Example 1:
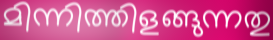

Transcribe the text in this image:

മിന്നിത്തിളങ്ങുന്നതു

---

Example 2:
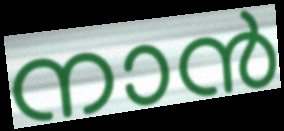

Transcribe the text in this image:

നാൻ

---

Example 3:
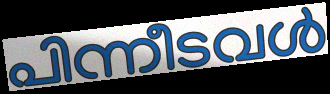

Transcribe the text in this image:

പിന്നീടവൾ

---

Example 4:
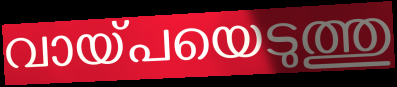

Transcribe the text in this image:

വായ്പയെടുത്തു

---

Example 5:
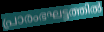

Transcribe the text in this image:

പ്രാരംഭഘട്ടത്തിൽ